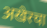
अखेरचा